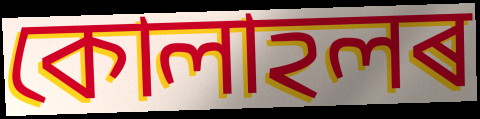
কোলাহলৰ